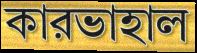
কারভাহাল